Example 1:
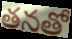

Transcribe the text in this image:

తనతో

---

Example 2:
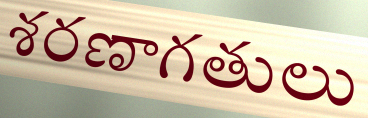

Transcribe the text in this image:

శరణాగతులు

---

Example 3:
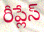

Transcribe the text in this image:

రీప్లేస్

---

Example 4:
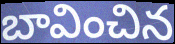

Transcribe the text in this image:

బావించిన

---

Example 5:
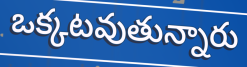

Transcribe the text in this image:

ఒక్కటవుతున్నారు